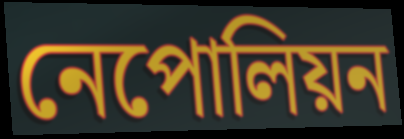
নেপোলিয়ন